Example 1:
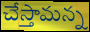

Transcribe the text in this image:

చేస్తామన్న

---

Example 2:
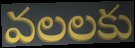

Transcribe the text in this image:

వలలకు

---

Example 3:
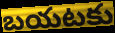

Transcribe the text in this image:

బయటకు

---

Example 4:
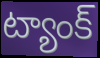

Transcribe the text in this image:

ట్యాంక్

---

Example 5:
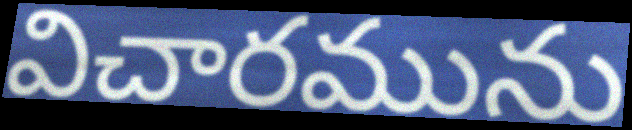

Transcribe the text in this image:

విచారమును